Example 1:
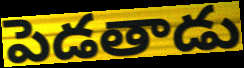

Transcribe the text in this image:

పెడతాడు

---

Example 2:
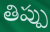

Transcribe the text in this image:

తిప్పు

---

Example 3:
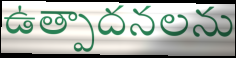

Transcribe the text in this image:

ఉత్పాదనలను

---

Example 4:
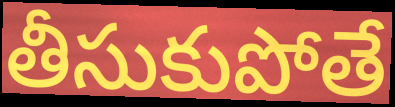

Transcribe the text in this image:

తీసుకుపోతే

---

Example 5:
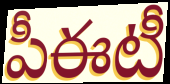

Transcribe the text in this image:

పీఈటీ